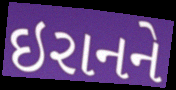
ઇરાનને